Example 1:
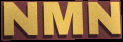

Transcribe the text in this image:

NMN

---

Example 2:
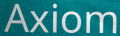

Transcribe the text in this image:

Axiom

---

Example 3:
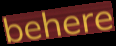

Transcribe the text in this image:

behere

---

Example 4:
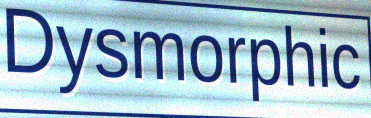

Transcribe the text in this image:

Dysmorphic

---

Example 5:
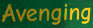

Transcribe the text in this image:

Avenging